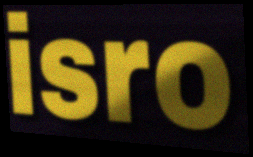
isro